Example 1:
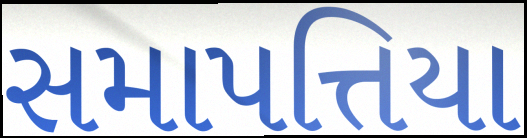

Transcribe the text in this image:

સમાપત્તિયા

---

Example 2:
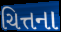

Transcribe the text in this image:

ચિત્તના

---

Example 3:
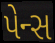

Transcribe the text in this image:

પેન્સ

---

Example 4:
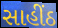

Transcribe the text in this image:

સાહીંઠ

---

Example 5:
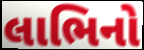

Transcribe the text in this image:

લાભિનો